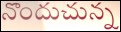
నొందుచున్న